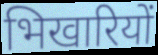
भिखारियों